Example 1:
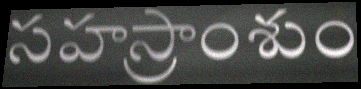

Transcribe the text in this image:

సహస్రాంశుం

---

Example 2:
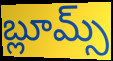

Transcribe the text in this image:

బ్లూమ్స్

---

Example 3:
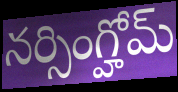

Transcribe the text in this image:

నర్సింగ్హోమ్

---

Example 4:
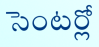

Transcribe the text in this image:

సెంటర్లో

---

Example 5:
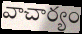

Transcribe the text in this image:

వాచార్యం